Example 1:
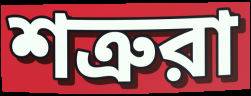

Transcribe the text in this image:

শত্রুরা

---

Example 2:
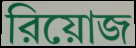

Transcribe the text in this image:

রিয়োজ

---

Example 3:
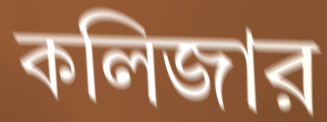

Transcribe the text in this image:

কলিজার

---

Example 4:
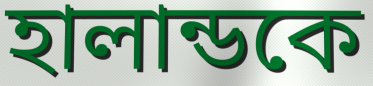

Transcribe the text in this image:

হালান্ডকে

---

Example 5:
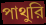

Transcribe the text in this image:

পাথুরি